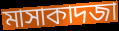
মাসাকাদজা